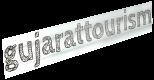
gujarattourism